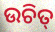
ଉଚିତ୍